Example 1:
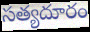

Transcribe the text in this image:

సత్యదూరం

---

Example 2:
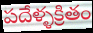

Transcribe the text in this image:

పదేళ్ళక్రితం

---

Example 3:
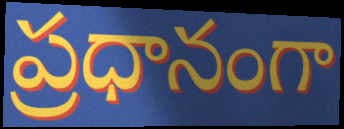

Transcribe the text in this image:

ప్రధానంగా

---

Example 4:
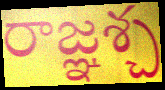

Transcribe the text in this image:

రాజ్ఞశ్చ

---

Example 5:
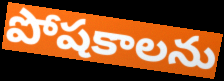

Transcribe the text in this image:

పోషకాలను